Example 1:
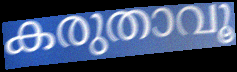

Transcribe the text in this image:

കരുതാവൂ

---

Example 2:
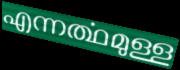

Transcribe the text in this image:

എന്നൎത്ഥമുള്ള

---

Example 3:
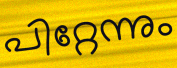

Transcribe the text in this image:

പിറ്റേന്നും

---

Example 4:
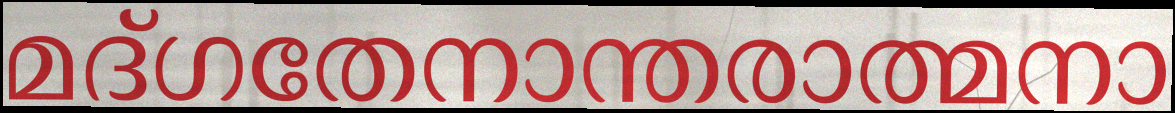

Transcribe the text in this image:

മദ്ഗതേനാന്തരാത്മനാ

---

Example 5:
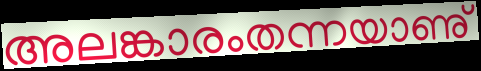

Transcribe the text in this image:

അലങ്കാരംതന്നയാണു്